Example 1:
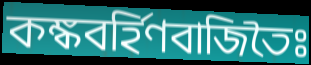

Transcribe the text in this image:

কঙ্কবর্হিণবাজিতৈঃ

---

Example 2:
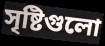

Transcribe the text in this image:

সৃষ্টিগুলো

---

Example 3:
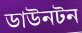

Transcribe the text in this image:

ডাউনটন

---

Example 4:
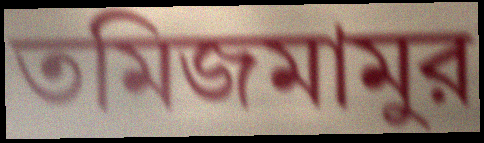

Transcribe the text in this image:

তমিজমামুর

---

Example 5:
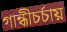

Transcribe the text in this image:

গান্ধীচর্চায়